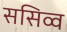
ससिव्व